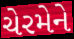
ચેરમેને